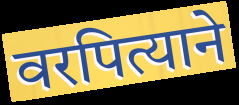
वरपित्याने